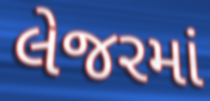
લેજરમાં